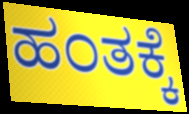
ಹಂತಕ್ಕೆ